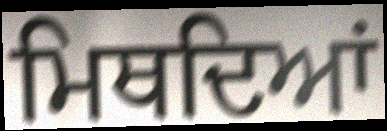
ਮਿਥਦਿਆਂ